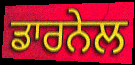
ਡਾਰਨੇਲ